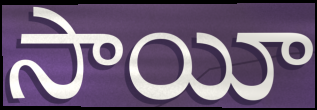
సాయీ